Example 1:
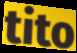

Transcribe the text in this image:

tito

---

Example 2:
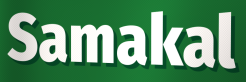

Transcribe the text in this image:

Samakal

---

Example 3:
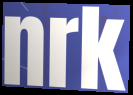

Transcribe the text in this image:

nrk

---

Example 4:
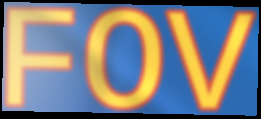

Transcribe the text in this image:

FOV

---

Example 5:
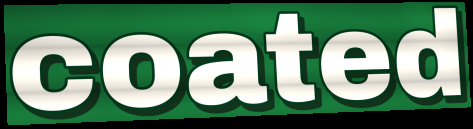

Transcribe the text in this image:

coated